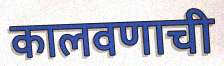
कालवणाची